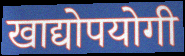
खाद्योपयोगी